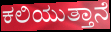
ಕಲಿಯುತ್ತಾನೆ